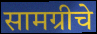
सामग्रीचे